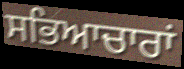
ਸਭਿਆਚਾਰਾਂ